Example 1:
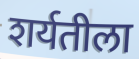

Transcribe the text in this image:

शर्यतीला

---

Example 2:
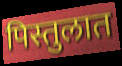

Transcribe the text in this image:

पिस्तुलात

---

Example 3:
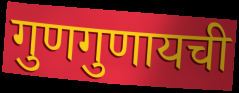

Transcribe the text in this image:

गुणगुणायची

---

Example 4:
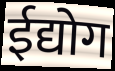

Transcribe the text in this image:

ईद्योग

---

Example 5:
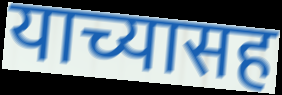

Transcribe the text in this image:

याच्यासह